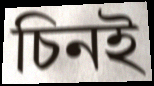
চিনই